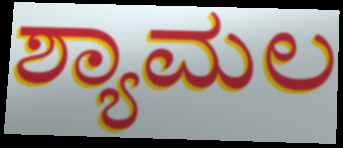
ಶ್ಯಾಮಲ